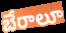
బేరాలూ